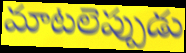
మాటలెప్పుడు